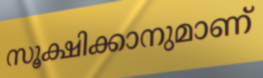
സൂക്ഷിക്കാനുമാണ്